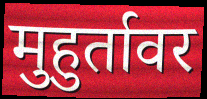
मुहुर्तावर